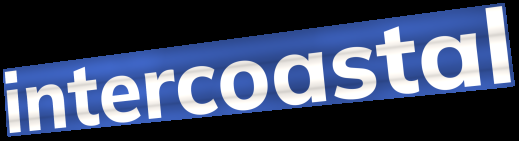
intercoastal